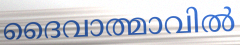
ദൈവാത്മാവിൽ